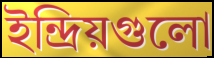
ইন্দ্রিয়গুলো